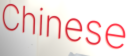
Chinese